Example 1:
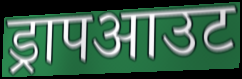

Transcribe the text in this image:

ड्रापआउट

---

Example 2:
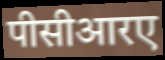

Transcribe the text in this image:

पीसीआरए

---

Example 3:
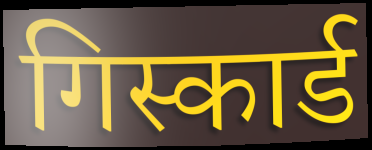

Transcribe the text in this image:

गिस्कार्ड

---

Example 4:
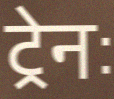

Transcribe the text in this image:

ट्रेनः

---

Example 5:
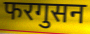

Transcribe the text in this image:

फरगुसन